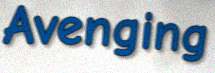
Avenging